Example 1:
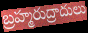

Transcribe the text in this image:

బ్రహ్మరుద్రాదులు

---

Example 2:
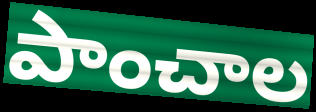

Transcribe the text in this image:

పాంచాల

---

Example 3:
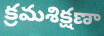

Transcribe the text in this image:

క్రమశిక్షణా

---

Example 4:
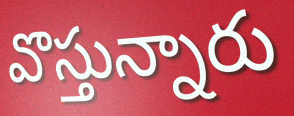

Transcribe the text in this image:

వొస్తున్నారు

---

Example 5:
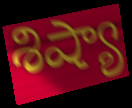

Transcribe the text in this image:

శిష్యా